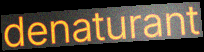
denaturant